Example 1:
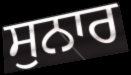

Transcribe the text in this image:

ਸੁਨਾਰ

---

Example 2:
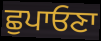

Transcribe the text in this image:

ਛੁਪਾਓਣਾ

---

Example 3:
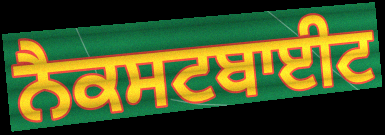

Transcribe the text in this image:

ਨੈਕਸਟਬਾਈਟ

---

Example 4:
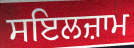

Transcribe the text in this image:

ਸਇਲਜ਼ਾਮ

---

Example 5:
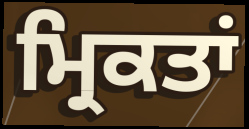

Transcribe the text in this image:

ਮ੍ਰਿਕਤਾਂ